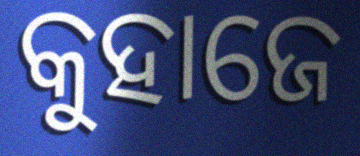
କୁହାଜେ